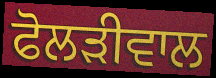
ਫੋਲੜੀਵਾਲ